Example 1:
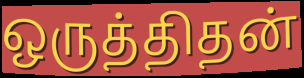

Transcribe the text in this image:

ஒருத்திதன்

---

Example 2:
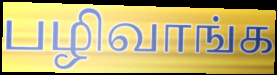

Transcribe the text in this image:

பழிவாங்க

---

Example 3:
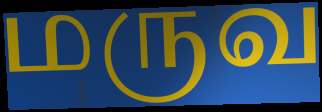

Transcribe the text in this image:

மருவ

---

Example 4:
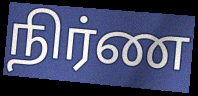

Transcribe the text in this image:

நிர்ண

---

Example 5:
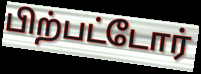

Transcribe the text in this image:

பிற்பட்டோர்